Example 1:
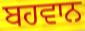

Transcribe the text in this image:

ਬਹਵਾਨ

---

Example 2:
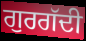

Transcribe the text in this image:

ਗੁਰਗੱਦੀ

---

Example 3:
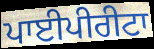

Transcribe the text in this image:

ਪਾਈਪੀਰੀਟਾ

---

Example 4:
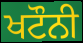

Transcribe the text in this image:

ਖਟੌਨੀ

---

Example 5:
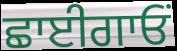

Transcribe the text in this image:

ਛਾਈਗਾਓਂ